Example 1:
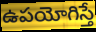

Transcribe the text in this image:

ఉపయోగిస్తే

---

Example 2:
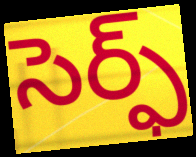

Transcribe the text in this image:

సెర్ఫ్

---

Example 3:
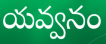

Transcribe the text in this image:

యవ్వనం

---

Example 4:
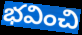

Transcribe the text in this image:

భవించి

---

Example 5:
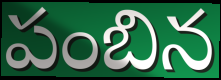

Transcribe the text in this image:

పంబిన